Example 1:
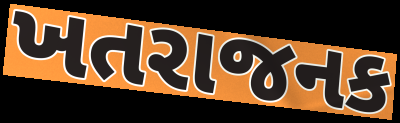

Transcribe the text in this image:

ખતરાજનક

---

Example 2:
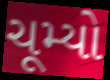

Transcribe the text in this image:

ચૂમ્યો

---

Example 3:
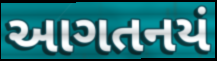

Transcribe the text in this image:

આગતનયં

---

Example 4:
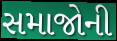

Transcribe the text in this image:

સમાજોની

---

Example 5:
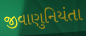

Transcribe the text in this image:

જીવાણુનિયંતા